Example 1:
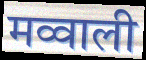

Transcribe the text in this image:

मव्वाली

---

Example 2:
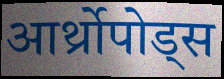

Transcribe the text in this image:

आर्थ्रोपोड्स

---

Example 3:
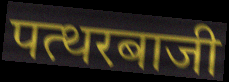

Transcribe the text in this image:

पत्‍थरबाजी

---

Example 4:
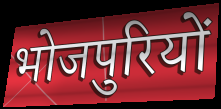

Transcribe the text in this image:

भोजपुरियों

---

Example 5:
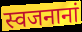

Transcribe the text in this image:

स्वजनानां